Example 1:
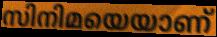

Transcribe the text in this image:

സിനിമയെയാണ്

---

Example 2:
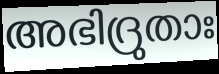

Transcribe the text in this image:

അഭിദ്രുതാഃ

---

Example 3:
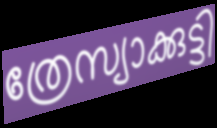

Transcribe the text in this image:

ത്രേസ്യാക്കുട്ടി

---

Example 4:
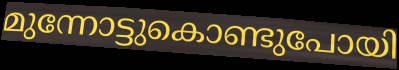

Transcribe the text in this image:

മുന്നോട്ടുകൊണ്ടുപോയി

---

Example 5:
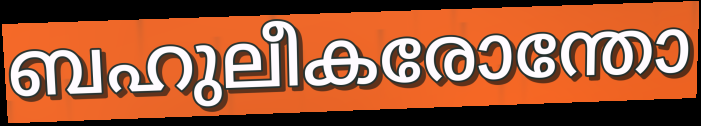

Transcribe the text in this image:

ബഹുലീകരോന്തോ